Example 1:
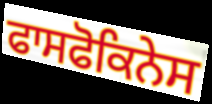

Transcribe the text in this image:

ਫਾਸਫੋਕਿਨੇਸ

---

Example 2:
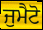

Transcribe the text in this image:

ਜੁਮੈਟੋ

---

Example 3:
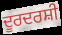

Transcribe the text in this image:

ਦੂਰਦਰਸ਼ੀ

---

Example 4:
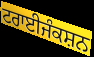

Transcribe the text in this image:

ਟਰਾਈਜੰਕਸ਼ਨ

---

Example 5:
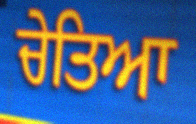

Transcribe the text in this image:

ਚੇਤਿਆ